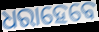
ଧରାହେବେ